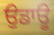
ਉਡਾਊ